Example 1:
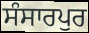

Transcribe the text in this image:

ਸੰਸਾਰਪੁਰ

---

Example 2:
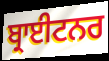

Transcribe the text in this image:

ਬ੍ਰਾਈਟਨਰ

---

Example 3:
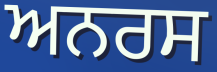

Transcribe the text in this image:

ਅਨਰਸ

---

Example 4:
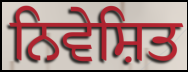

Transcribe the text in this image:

ਨਿਵੇਸ਼ਿਤ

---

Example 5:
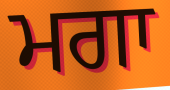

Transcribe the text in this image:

ਮਗਾ